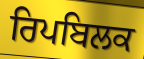
ਰਿਪਬਿਲਕ